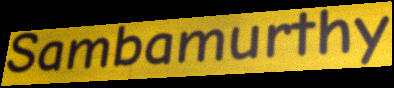
Sambamurthy